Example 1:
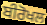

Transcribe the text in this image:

ਬੀਰੋਖਲ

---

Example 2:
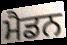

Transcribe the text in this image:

ਮੈਡਨ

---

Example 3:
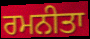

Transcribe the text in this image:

ਰਮਨੀਤਾ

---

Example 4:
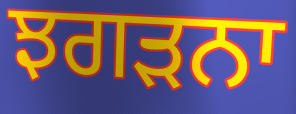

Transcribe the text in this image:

ਝਗੜਨਾ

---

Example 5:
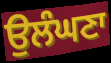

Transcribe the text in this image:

ਉਲੰਘਣਾ